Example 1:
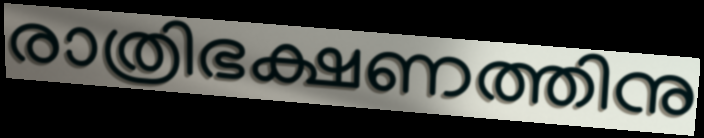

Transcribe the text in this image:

രാത്രിഭക്ഷണത്തിനു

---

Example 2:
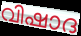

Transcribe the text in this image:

വിഷാദ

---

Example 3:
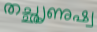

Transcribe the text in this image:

തച്ഛൃണുഷ്വ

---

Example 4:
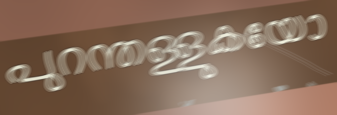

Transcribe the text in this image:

പുറന്തള്ളുകയോ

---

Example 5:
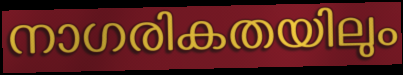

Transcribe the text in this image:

നാഗരികതയിലും